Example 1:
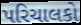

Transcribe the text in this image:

પરિચાલકો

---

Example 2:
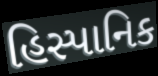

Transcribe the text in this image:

હિસ્પાનિક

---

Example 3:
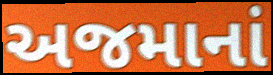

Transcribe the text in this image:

અજમાનાં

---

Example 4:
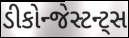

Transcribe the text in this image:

ડીકોન્જેસ્ટન્ટ્સ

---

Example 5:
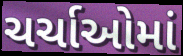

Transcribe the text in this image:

ચર્ચાઓમાં